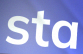
sta